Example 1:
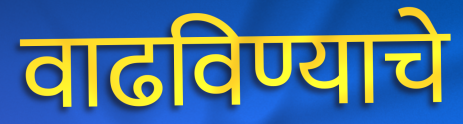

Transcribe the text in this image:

वाढविण्याचे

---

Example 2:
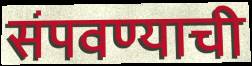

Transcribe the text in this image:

संपवण्याची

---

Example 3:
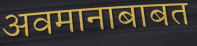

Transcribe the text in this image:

अवमानाबाबत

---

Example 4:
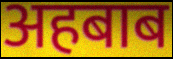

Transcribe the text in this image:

अहबाब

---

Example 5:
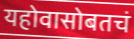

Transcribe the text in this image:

यहोवासोबतचं